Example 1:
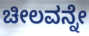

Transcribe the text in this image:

ಚೀಲವನ್ನೇ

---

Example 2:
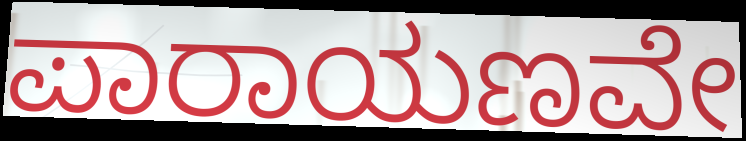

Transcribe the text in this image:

ಪಾರಾಯಣವೇ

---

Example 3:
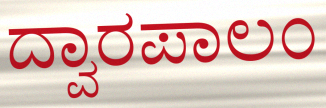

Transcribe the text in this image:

ದ್ವಾರಪಾಲಂ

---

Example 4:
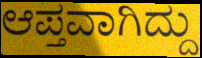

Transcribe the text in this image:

ಆಪ್ತವಾಗಿದ್ದು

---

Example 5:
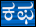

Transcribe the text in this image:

ಕಫ